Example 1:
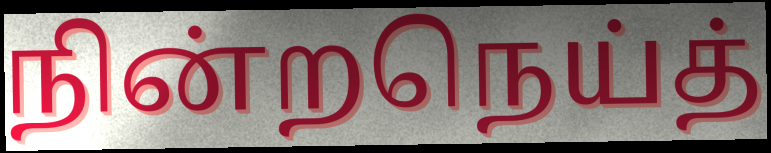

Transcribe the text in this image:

நின்றநெய்த்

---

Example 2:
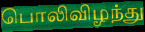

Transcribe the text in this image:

பொலிவிழந்து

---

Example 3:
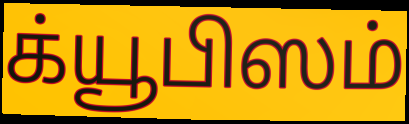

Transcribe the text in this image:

க்யூபிஸம்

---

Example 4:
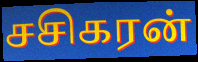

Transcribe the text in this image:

சசிகரன்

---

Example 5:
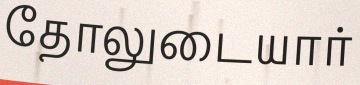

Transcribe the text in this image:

தோலுடையார்